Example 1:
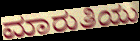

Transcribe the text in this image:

ಮಾರುತಿಯು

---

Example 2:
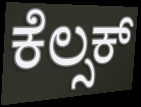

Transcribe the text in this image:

ಕೆಲ್ಸಕ್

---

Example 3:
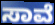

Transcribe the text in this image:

ಸಾವೆ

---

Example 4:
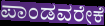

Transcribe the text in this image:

ಪಾಂಡವರೇಕೆ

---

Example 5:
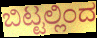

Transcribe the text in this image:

ಬಿಟ್ಟಲ್ಲಿಂದ